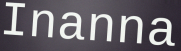
Inanna